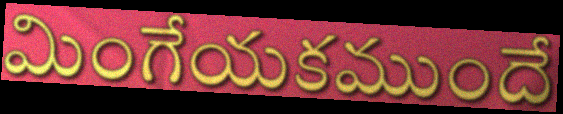
మింగేయకముందే